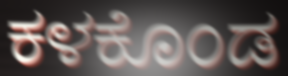
ಕಳಕೊಂಡ